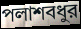
পলাশবধুর